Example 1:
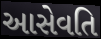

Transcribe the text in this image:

આસેવતિ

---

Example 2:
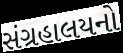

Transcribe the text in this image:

સંગ્રહાલયનો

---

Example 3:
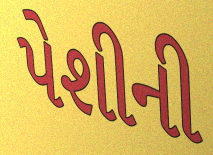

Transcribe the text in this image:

પેશીની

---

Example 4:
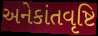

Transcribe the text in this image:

અનેકાંતવૃષ્ટિ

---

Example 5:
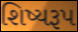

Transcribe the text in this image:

શિષ્યરૂપ